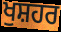
ਖੁਸ਼ਹਰ